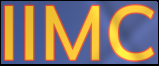
IIMC